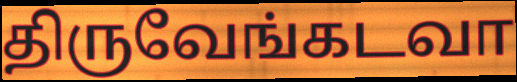
திருவேங்கடவா